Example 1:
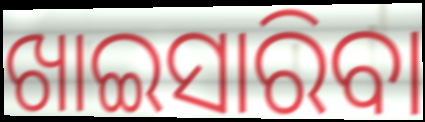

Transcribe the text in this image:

ଖାଇସାରିବା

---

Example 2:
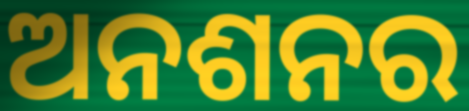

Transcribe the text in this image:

ଅନଶନର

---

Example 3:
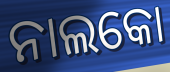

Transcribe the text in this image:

ନାଲକୋ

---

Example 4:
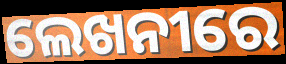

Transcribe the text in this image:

ଲେଖନୀରେ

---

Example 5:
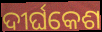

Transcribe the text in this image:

ଦୀର୍ଘକେଶ